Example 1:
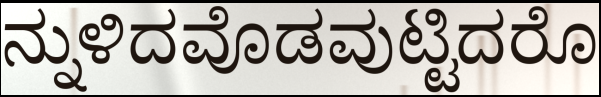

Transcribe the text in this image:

ನ್ನುಳಿದವೊಡವುಟ್ಟಿದರೊ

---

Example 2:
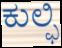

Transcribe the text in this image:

ಕುಲ್ಫಿ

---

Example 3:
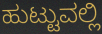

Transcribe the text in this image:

ಹುಟ್ಟುವಲ್ಲಿ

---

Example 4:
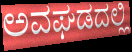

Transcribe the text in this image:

ಅವಘಡದಲ್ಲಿ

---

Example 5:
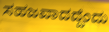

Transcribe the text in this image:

ಸಹಜವಾದದ್ದೆಂದು